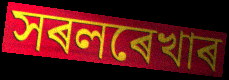
সৰলৰেখাৰ